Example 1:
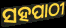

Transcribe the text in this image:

ସହପାଠୀ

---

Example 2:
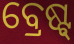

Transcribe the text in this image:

ବ୍ରେଷ୍ଟ୍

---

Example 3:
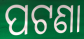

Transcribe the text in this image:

ପଟଣା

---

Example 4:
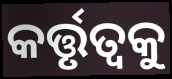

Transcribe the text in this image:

କର୍ତ୍ତୃତ୍ୱକୁ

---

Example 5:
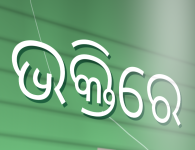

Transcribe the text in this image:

ଭକ୍ତିରେ